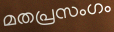
മതപ്രസംഗം